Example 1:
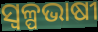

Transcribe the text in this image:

ସ୍ୱଳ୍ପଭାଷୀ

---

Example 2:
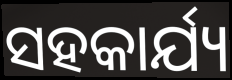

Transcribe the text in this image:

ସହକାର୍ଯ୍ୟ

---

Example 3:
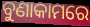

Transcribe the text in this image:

ବୁଣାକାମରେ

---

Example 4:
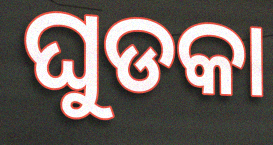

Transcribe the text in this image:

ଘୁଡକା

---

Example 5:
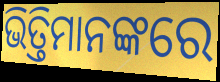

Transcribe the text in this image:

ଭିତ୍ତିମାନଙ୍କରେ